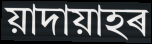
য়াদায়াহৰ